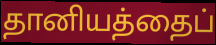
தானியத்தைப்